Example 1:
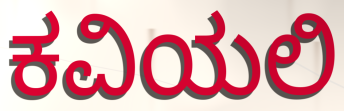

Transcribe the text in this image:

ಕವಿಯಲಿ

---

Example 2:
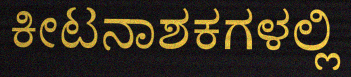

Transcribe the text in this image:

ಕೀಟನಾಶಕಗಳಲ್ಲಿ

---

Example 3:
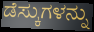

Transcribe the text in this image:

ಡೆಸ್ಕುಗಳನ್ನು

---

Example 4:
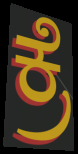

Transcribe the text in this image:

ಕ್ರೆ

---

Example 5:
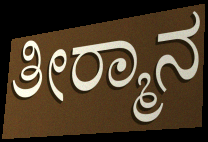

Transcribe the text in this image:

ತೀರ‍್ಮಾನ